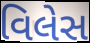
વિલેસ